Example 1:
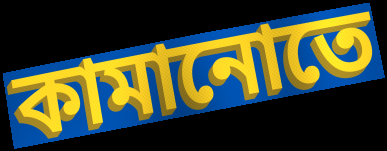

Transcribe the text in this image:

কামানোতে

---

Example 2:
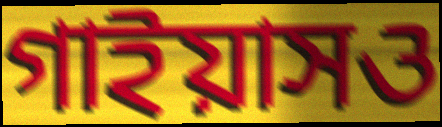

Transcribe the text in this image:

গাইয়াসও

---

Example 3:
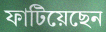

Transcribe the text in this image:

ফাটিয়েছেন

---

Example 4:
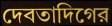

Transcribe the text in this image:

দেবতাদিগের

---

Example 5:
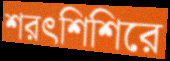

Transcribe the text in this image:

শরৎশিশিরে